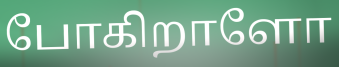
போகிறாளோ